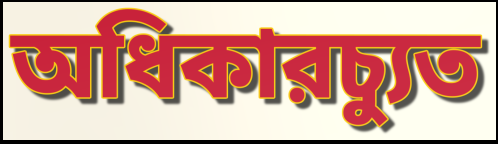
অধিকারচ্যুত